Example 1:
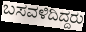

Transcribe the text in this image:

ಬಸವಳಿದಿದ್ದರು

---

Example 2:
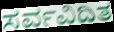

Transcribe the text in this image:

ಸರ್ವವಿದಿತ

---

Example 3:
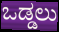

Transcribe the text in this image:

ಒಡ್ಡಲು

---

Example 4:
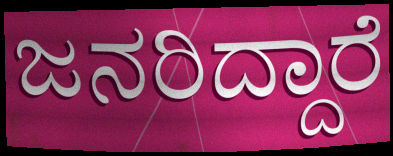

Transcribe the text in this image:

ಜನರಿದ್ದಾರೆ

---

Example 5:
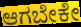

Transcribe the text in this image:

ಆಗಬೇಕೇ